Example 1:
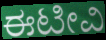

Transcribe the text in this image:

ಈಟೀವಿ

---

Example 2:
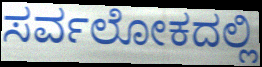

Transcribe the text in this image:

ಸರ್ವಲೋಕದಲ್ಲಿ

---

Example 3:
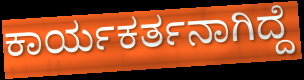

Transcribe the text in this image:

ಕಾರ್ಯಕರ್ತನಾಗಿದ್ದೆ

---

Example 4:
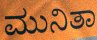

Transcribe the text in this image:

ಮುನಿತಾ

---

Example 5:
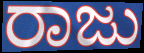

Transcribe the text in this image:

ರಾಜು